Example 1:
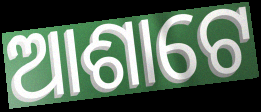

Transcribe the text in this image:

ଆଶାଟେ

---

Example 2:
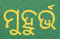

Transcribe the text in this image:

ମୁହୁର୍ଭ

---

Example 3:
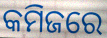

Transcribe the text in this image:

କମିଜରେ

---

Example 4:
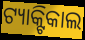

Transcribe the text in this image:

ଟ୍ୟାକ୍ଟିକାଲ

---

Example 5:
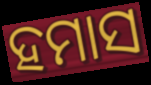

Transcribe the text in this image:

ହମାସ